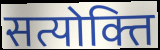
सत्योक्ति